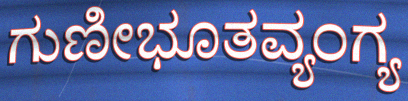
ಗುಣೀಭೂತವ್ಯಂಗ್ಯ